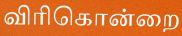
விரிகொன்றை